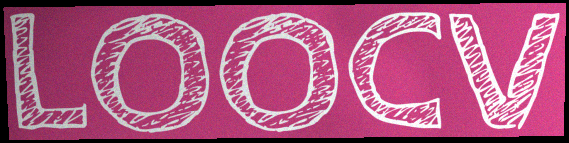
LOOCV